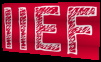
IIEF